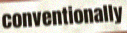
conventionally